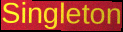
Singleton